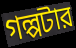
গল্পটার